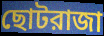
ছোটরাজা